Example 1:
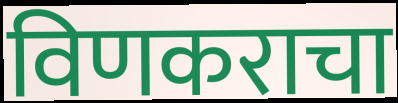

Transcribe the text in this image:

विणकराचा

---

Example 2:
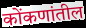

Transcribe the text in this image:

कोंकणांतील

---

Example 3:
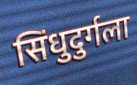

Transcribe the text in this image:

सिंधुदुर्गला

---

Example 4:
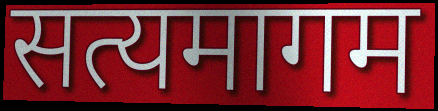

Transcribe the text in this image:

सत्यमागम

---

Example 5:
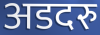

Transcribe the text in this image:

अडदरु